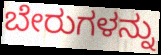
ಬೇರುಗಳನ್ನು